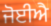
ਜੋਈਐ